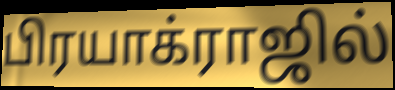
பிரயாக்ராஜில்